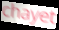
chayet